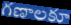
గణాలకూ